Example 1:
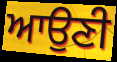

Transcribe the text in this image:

ਆਉਣੀ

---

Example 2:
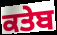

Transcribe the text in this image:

ਕਤੇਬ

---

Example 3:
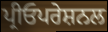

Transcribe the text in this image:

ਪ੍ਰੀਓਪਰੇਸ਼ਨਲ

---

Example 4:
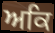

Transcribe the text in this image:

ਅਕਿ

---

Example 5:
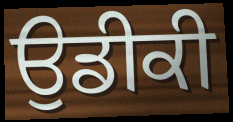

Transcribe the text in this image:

ਉਡੀਕੀ